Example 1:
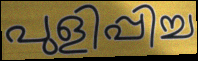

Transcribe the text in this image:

പുളിപ്പിച്ച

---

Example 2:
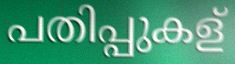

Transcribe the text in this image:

പതിപ്പുകള്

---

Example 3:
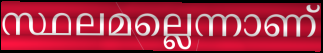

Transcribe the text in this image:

സ്ഥലമല്ലെന്നാണ്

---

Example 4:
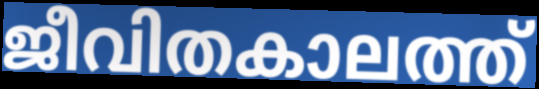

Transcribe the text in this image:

ജീവിതകാലത്ത്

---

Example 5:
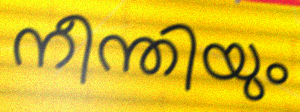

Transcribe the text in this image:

നീന്തിയും